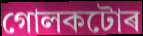
গোলকটোৰ